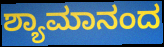
ಶ್ಯಾಮಾನಂದ